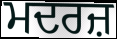
ਮਦਰਜ਼